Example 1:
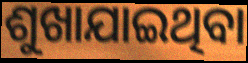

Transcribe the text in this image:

ଶୁଖାଯାଇଥିବା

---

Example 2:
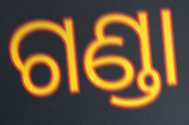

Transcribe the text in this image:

ଗଣ୍ଡା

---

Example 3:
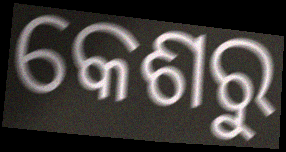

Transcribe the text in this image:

କେଶରୁ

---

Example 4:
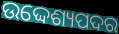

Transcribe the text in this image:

ଉଦ୍ଦେଶ୍ୟପଦର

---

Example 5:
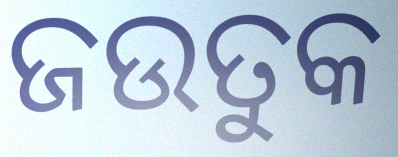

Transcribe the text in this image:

ଜଉତୁକ